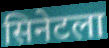
सिनेटला